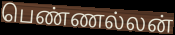
பெண்ணல்லன்